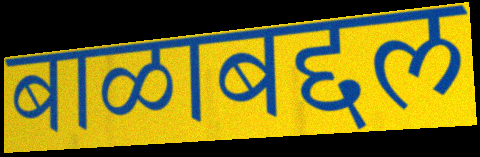
बाळाबद्दल